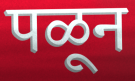
पळून